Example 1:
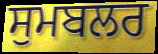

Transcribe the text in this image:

ਸੁਮਬਲਰ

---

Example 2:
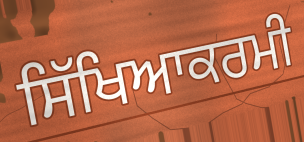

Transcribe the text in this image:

ਸਿੱਖਿਆਕਰਮੀ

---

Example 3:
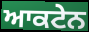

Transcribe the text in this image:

ਆਕਟੇਨ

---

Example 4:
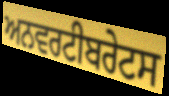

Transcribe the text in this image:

ਅਨਵਰਟੀਬਰੇਟਸ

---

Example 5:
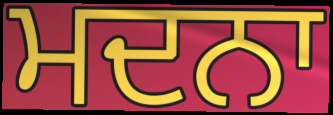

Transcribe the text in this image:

ਮਦਨਾ